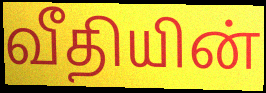
வீதியின்